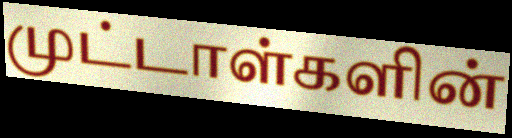
முட்டாள்களின்